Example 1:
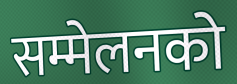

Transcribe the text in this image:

सम्मेलनको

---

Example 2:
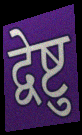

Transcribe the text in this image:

द्वेष्टु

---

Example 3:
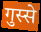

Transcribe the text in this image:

गुस्‍से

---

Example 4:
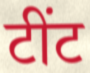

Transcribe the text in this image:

टींट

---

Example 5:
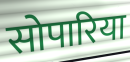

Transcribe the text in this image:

सोपारिया